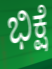
ಭಿಕ್ಷೆ